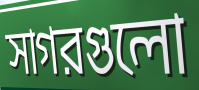
সাগরগুলো